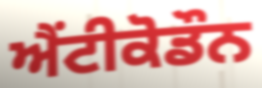
ਐਂਟੀਕੋਡੌਨ